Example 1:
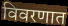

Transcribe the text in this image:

विवरणात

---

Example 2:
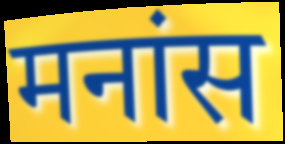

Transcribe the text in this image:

मनांस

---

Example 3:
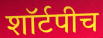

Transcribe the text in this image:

शॉर्टपीच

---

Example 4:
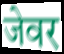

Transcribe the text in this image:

जेवर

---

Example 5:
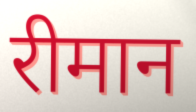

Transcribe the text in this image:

रीमान